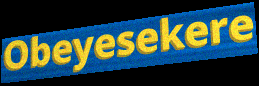
Obeyesekere